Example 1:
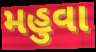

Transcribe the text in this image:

મહુવા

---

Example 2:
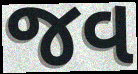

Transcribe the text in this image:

જવ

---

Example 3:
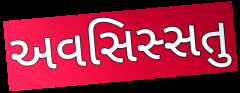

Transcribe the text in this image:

અવસિસ્સતુ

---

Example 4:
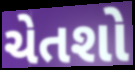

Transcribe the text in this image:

ચેતશો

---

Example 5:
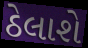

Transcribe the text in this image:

ઠેલાશે